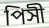
পিসী